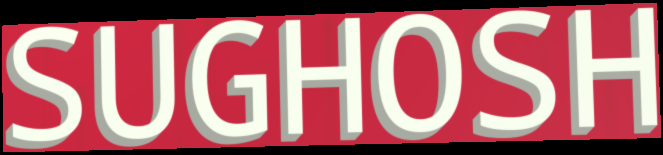
SUGHOSH